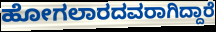
ಹೋಗಲಾರದವರಾಗಿದ್ದಾರೆ